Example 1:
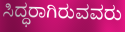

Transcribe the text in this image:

ಸಿದ್ಧರಾಗಿರುವವರು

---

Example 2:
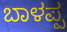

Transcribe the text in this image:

ಬಾಳಪ್ಪ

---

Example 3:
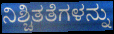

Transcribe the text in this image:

ನಿಶ್ಚಿತತೆಗಳನ್ನು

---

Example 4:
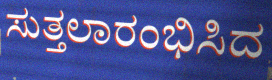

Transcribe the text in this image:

ಸುತ್ತಲಾರಂಭಿಸಿದ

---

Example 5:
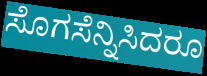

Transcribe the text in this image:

ಸೊಗಸೆನ್ನಿಸಿದರೂ